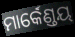
ମାର୍କେଣ୍ଡୟ